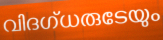
വിദഗ്ധരുടേയും